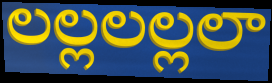
లల్లలల్లలా